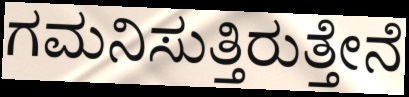
ಗಮನಿಸುತ್ತಿರುತ್ತೇನೆ